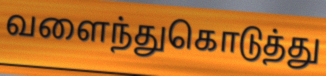
வளைந்துகொடுத்து